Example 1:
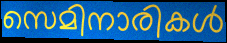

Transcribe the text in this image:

സെമിനാരികൾ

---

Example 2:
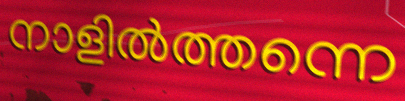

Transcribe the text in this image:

നാളിൽത്തന്നെ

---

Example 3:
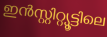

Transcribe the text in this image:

ഇൻസ്റ്റിറ്റ്യൂട്ടിലെ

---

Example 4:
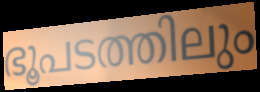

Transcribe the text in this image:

ഭൂപടത്തിലും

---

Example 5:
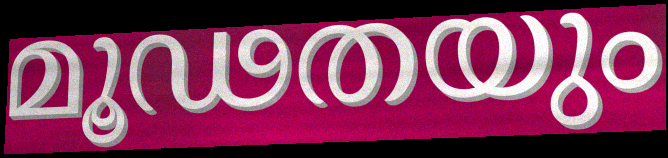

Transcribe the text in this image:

മൂഢതയും